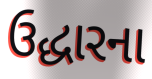
ઉદ્ધારના